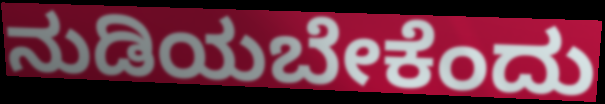
ನುಡಿಯಬೇಕೆಂದು